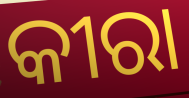
କୀରା